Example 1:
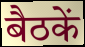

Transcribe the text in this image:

बैठकें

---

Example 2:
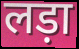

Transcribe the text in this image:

लड़ा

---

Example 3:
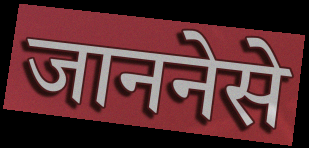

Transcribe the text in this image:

जाननेसे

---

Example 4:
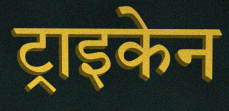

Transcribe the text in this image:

ट्राइकेन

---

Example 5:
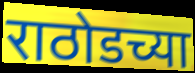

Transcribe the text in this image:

राठोडच्या